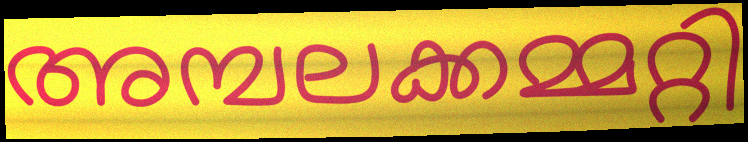
അമ്പലക്കമ്മറ്റി